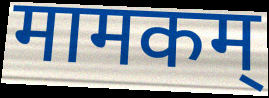
मामकम्